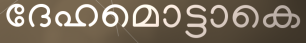
ദേഹമൊട്ടാകെ